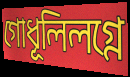
গোধূলিলগ্নে